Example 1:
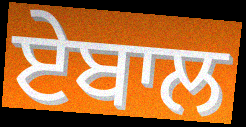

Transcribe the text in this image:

ਏਬਾਲ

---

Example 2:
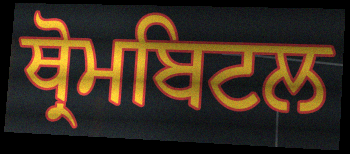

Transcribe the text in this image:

ਥ੍ਰੋਮਬਿਟਲ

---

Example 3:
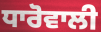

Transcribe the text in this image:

ਧਾਰੋਵਾਲੀ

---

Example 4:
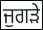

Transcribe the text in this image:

ਜੁਗੜੇ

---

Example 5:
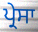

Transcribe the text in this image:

ਪ੍ਰੇਸਾ